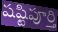
షష్టిపూర్తి